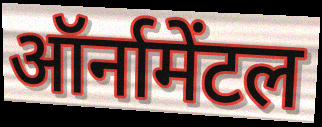
ऑर्नामेंटल